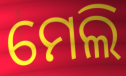
ମେଲି